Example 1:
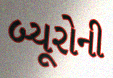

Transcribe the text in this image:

બ્યૂરોની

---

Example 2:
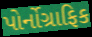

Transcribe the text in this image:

પોર્નોગ્રાફિક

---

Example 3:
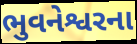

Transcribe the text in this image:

ભુવનેશ્વરના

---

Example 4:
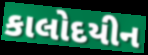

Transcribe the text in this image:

કાલોદયીન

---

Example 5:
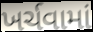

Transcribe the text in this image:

ખર્ચવામાં